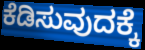
ಕೆಡಿಸುವುದಕ್ಕೆ